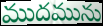
ముదమును